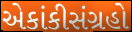
એકાંકીસંગ્રહો